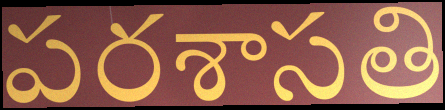
పరశాసతి